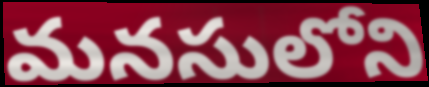
మనసులోని